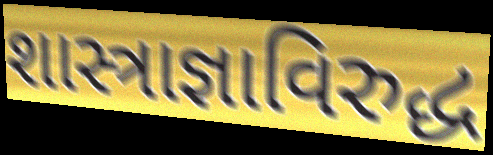
શાસ્ત્રાજ્ઞાવિરુદ્ધ